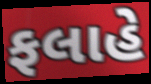
ફલાહે